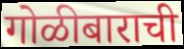
गोळीबाराची